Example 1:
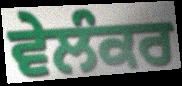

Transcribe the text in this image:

ਵੇਲੰਕਰ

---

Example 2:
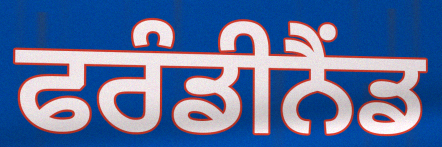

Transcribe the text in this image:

ਫਰੰਡੀਨੈਂਡ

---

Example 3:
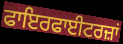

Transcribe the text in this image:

ਫਾਇਰਫਾਈਟਰਜ਼ਾਂ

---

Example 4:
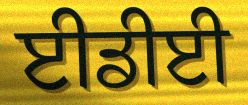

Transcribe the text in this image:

ਈਡੀਈ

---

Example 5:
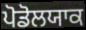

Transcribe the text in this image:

ਪੋਡੋਲਯਾਕ